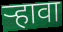
र्‍हावा